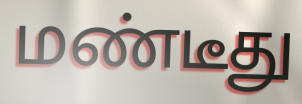
மண்டீது